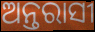
ଅନ୍ତରାସୀ